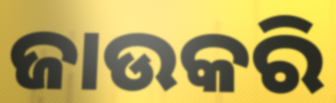
ଜାଉକରି